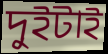
দুইটাই